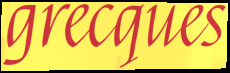
grecques